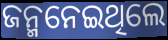
ଜନ୍ମନେଇଥିଲେ